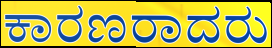
ಕಾರಣರಾದರು